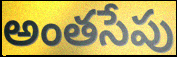
అంతసేపు